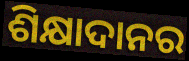
ଶିକ୍ଷାଦାନର